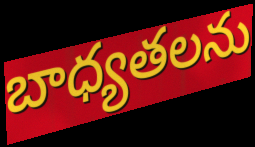
బాధ్యతలను